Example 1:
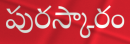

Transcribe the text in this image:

పురస్కారం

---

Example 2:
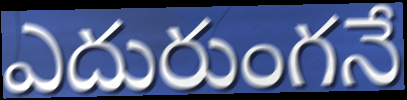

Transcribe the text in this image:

ఎదురుంగనే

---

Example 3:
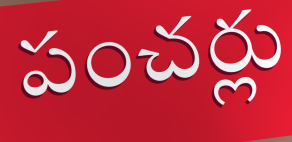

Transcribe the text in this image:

పంచర్లు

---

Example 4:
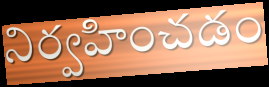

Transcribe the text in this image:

నిర్వహించడం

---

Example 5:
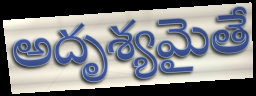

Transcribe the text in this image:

అదృశ్యమైతే